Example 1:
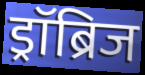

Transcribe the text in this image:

ड्रॉब्रिज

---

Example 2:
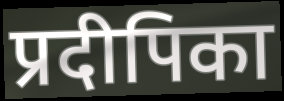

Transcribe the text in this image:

प्रदीपिका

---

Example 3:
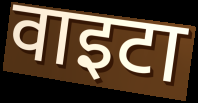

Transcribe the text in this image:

वाइटा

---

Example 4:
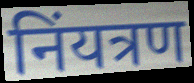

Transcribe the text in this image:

निंयत्रण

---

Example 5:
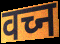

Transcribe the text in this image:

वच्न